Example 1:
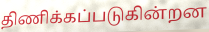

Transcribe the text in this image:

திணிக்கப்படுகின்றன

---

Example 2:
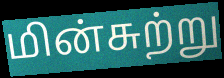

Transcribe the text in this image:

மின்சுற்று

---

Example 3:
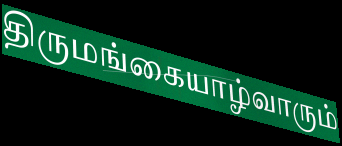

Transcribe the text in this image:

திருமங்கையாழ்வாரும்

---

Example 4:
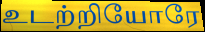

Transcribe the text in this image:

உடற்றியோரே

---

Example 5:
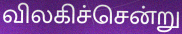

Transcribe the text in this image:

விலகிச்சென்று